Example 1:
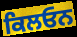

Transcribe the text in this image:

ਕਿਲਓਨ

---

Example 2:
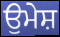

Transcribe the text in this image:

ਉਮੇਸ਼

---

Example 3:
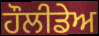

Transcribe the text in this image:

ਹੌਲੀਡੇਅ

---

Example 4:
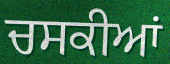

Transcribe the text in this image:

ਚਸਕੀਆਂ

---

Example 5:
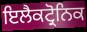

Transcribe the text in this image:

ਇਲੈਕਟ੍ਰੋਨਿਕ